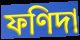
ফণিদা